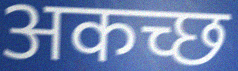
अकच्छ